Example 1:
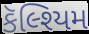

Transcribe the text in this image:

કૅલ્શ્યિમ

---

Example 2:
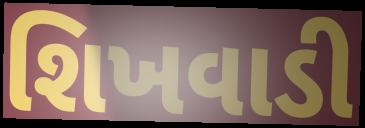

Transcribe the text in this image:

શિખવાડી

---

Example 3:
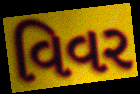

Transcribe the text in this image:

વિવર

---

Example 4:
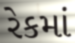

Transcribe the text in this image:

રેકમાં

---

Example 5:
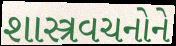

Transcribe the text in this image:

શાસ્ત્રવચનોને